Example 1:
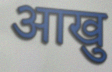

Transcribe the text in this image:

आखु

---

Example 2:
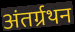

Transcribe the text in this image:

अंतर्ग्रथन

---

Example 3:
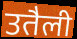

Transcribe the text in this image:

उतैली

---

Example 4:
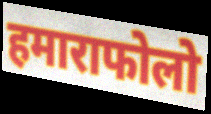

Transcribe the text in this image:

हमाराफोलो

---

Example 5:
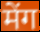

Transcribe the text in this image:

मेंग